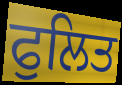
ਫੁਲਿਤ